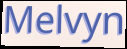
Melvyn